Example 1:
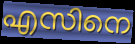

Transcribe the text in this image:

എസിനെ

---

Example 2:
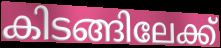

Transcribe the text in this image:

കിടങ്ങിലേക്ക്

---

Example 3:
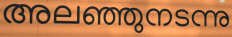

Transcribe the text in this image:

അലഞ്ഞുനടന്നു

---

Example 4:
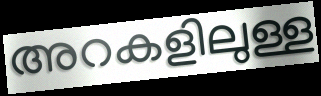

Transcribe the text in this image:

അറകളിലുള്ള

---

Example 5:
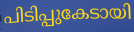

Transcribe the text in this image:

പിടിപ്പുകേടായി